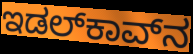
ಇಡಲ್‌ಕಾವ್‌ನ